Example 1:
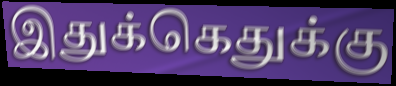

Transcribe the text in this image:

இதுக்கெதுக்கு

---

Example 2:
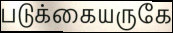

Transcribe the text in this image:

படுக்கையருகே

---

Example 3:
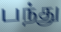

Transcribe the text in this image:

பந்து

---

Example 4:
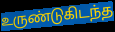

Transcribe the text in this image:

உருண்டுகிடந்த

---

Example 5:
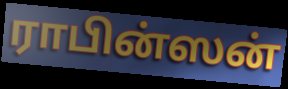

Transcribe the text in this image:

ராபின்ஸன்